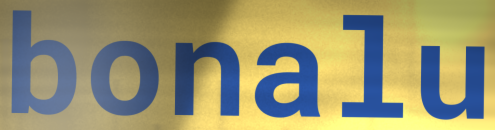
bonalu